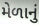
મેળાનું